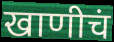
खाणीचं